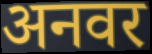
अनवर